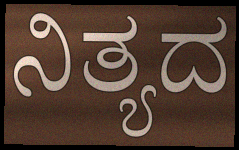
ನಿತ್ಯದ